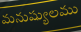
మనుష్యులము